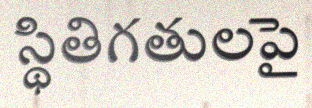
స్థితిగతులపై